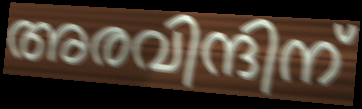
അരവിന്ദിന്